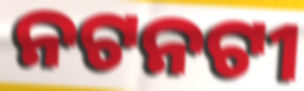
ନଟନଟୀ